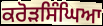
ਕਰੋੜਸਿੰਘਿਆ